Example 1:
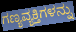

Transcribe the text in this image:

ಗಣ್ಯವ್ಯಕ್ತಿಗಳನ್ನು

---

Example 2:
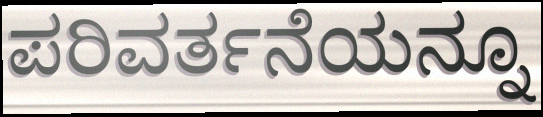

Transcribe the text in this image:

ಪರಿವರ್ತನೆಯನ್ನೂ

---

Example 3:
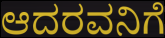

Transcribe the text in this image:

ಆದರವನಿಗೆ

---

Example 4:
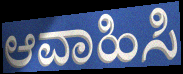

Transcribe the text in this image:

ಆವಾಹಿಸಿ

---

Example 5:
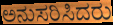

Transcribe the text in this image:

ಅನುಸರಿಸಿದರು